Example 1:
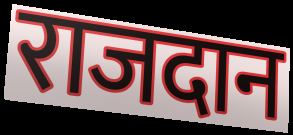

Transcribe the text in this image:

राजदान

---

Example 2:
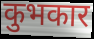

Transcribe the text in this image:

कुभकार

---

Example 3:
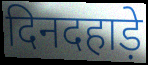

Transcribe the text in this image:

दिनदहाड़े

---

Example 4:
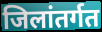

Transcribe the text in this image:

जिलांतर्गत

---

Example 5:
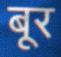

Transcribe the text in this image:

बूर